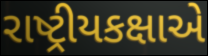
રાષ્ટ્રીયકક્ષાએ